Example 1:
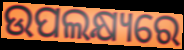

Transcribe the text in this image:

ଉପଲକ୍ଷ୍ୟରେ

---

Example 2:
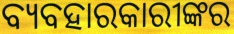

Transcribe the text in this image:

ବ୍ୟବହାରକାରୀଙ୍କର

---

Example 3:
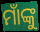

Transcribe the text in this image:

ମାଁଙ୍କୁ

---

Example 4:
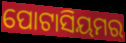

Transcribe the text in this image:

ପୋଟାସିୟମର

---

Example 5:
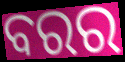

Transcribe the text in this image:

ବରର